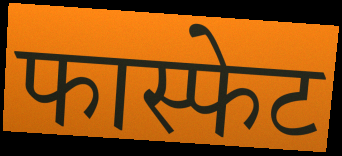
फास्फेट